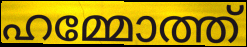
ഹമ്മോത്ത്